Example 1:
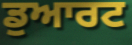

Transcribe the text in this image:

ਡੁਆਰਟ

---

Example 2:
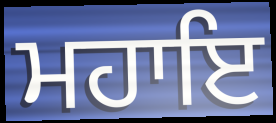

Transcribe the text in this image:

ਮਹਾਇ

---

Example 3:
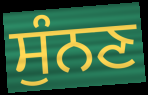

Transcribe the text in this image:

ਸੁੰਨਣ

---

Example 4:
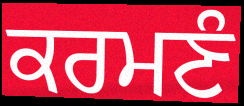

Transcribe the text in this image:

ਕਰਮਣੰ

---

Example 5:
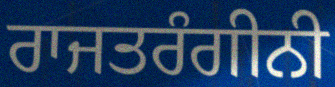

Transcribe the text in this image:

ਰਾਜਤਰੰਗੀਨੀ